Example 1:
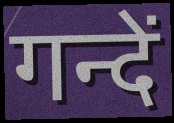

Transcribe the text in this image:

गन्दें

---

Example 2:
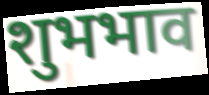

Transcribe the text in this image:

शुभभाव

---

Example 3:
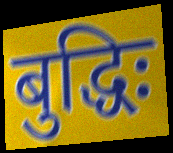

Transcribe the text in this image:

बुद्धिः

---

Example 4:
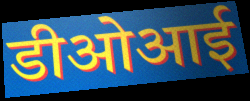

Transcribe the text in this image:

डीओआई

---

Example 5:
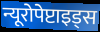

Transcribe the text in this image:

न्यूरोपेप्टाइड्स